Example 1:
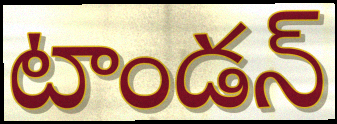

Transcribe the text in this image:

టాండన్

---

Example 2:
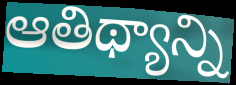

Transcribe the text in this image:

ఆతిథ్యాన్ని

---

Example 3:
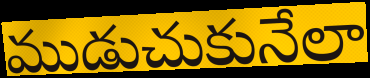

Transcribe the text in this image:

ముడుచుకునేలా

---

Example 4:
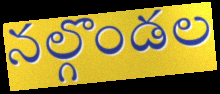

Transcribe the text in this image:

నల్గొండల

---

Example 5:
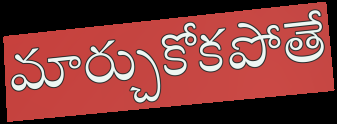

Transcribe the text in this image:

మార్చుకోకపోతే